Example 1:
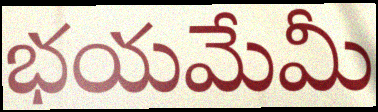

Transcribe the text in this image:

భయమేమీ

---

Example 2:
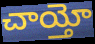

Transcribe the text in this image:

చాయ్తో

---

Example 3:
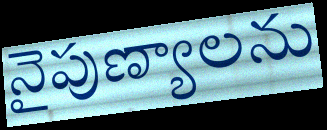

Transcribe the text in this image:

నైపుణ్యాలను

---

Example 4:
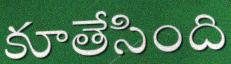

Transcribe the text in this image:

కూతేసింది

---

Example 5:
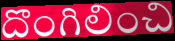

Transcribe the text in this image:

దొంగిలించి